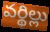
వర్థిల్లు